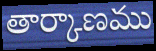
తార్కాణము